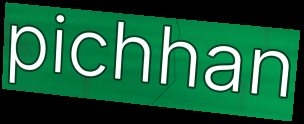
pichhan